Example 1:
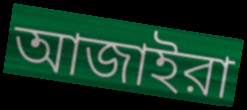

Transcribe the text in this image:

আজাইরা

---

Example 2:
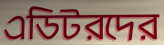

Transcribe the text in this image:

এডিটরদের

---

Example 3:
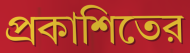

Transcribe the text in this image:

প্রকাশিতের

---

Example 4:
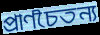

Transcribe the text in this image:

প্রাণচৈতন্য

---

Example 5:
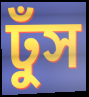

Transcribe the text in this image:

ঢুঁস